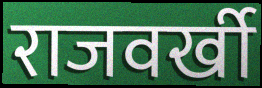
राजवर्खी